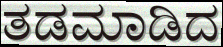
ತಡಮಾಡಿದ